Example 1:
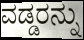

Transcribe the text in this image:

ವಡ್ಡರನ್ನು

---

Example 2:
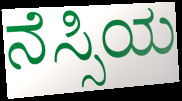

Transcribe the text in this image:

ನೆಸ್ಸಿಯ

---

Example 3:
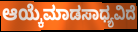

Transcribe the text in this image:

ಆಯ್ಕೆಮಾಡಸಾಧ್ಯವಿದೆ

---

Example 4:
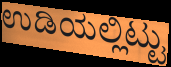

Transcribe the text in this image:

ಉಡಿಯಲ್ಲಿಟ್ಟು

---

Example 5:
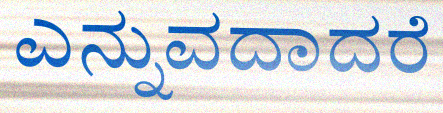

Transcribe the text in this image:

ಎನ್ನುವದಾದರೆ